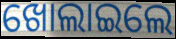
ଖୋଲାଇଲେ